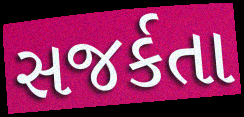
સજર્કતા